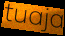
tuaja